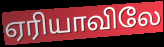
ஏரியாவிலே